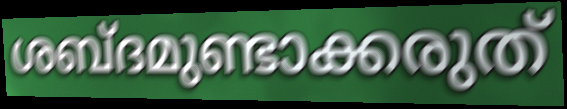
ശബ്ദമുണ്ടാക്കരുത്